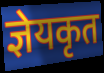
ज्ञेयकृत